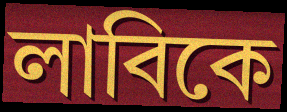
লাবিকে